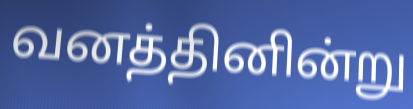
வனத்தினின்று